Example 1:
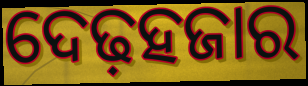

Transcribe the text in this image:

ଦେଢ଼ହଜାର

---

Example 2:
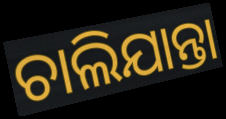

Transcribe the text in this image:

ଚାଲିଯାନ୍ତା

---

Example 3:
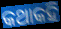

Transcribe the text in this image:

କଥାକହି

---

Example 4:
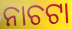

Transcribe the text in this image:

ନାଚଟା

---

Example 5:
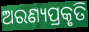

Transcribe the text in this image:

ଅରଣ୍ୟପ୍ରକୃତି